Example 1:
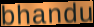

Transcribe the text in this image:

bhandu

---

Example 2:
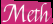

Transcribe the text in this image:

Meth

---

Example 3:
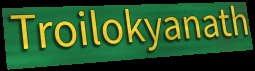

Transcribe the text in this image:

Troilokyanath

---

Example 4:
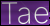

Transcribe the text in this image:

Tae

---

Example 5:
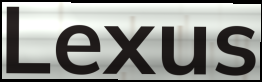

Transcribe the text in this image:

Lexus